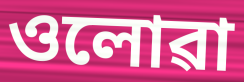
ওলোৱা